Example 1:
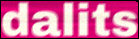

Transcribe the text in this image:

dalits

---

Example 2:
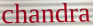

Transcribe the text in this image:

chandra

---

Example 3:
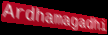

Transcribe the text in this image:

Ardhamagadhi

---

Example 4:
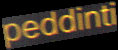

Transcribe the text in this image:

peddinti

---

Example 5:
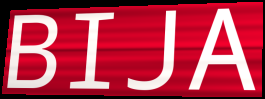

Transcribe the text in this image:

BIJA